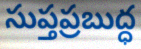
సుప్తప్రబుద్ధ